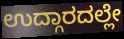
ಉದ್ಗಾರದಲ್ಲೇ